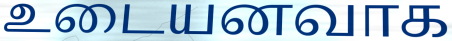
உடையனவாக